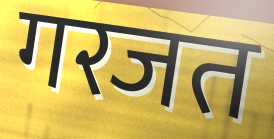
गरजत